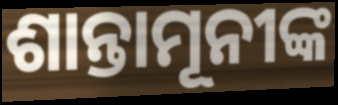
ଶାନ୍ତାମୂନୀଙ୍କ